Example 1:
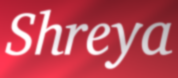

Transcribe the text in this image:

Shreya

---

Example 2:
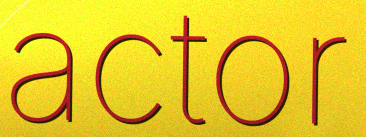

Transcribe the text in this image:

actor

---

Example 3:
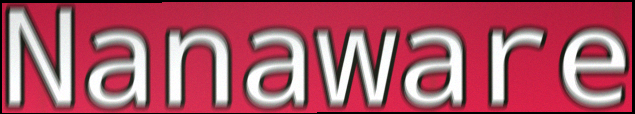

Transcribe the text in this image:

Nanaware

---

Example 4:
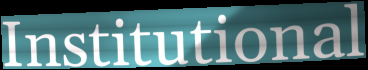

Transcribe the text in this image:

Institutional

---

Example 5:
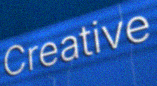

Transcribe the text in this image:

Creative